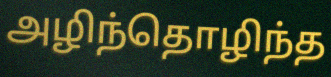
அழிந்தொழிந்த